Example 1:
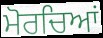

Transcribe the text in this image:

ਮੋਰਚਿਆਂ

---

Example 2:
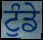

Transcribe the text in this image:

ਟੁੰਡੇ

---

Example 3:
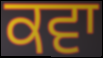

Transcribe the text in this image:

ਕਵਾ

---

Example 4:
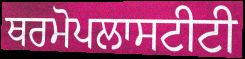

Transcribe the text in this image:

ਥਰਮੋਪਲਾਸਟੀਟੀ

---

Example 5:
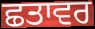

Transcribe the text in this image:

ਛਤਾਵਰ